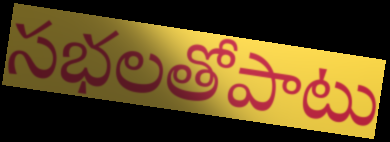
సభలతోపాటు